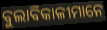
ବୁଲାବିକାଳୀମାନେ